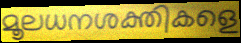
മൂലധനശക്തികളെ